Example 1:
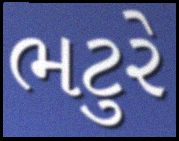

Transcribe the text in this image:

ભટુરે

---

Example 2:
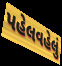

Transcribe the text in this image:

પહેલવહેલું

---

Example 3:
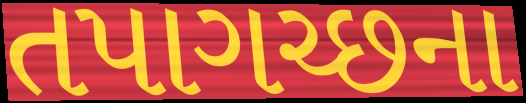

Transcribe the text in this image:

તપાગચ્છના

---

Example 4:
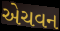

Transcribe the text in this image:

એચવન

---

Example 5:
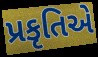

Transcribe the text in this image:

પ્રકૃતિએ